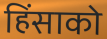
हिंसाको